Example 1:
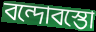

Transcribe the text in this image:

বন্দোবস্তো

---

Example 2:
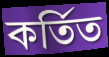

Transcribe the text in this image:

কর্তিত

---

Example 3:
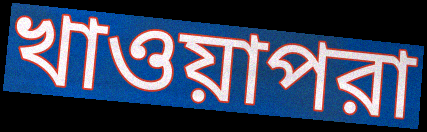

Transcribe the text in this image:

খাওয়াপরা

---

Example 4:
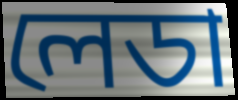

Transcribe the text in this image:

লেডা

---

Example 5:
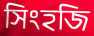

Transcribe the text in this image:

সিংহজি